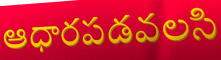
ఆధారపడవలసి